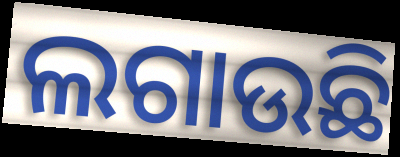
ଲଗାଉଛି